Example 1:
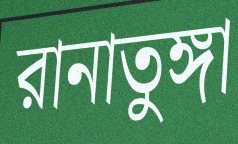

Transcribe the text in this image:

রানাতুঙ্গা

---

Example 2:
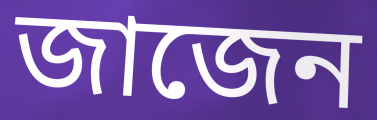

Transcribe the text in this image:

জাজেন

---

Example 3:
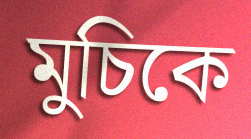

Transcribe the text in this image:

মুচিকে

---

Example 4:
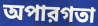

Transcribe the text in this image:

অপারগতা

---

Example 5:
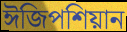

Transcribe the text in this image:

ঈজিপশিয়ান